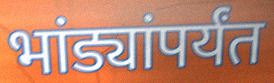
भांड्यांपर्यंत